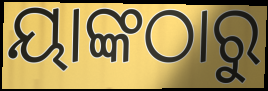
ୟାଙ୍କଠାରୁ